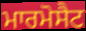
ਮਾਰਮੋਸੈਟ